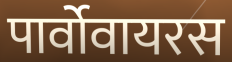
पार्वोवायरस